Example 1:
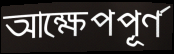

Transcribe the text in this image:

আক্ষেপপূর্ণ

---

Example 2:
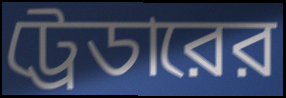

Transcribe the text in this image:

ট্রেডারের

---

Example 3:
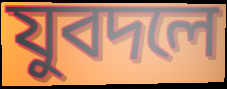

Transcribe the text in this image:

যুবদলে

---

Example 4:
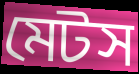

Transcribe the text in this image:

মেটস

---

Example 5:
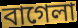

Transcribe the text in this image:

বাগেলা